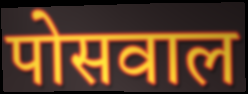
पोसवाल